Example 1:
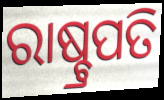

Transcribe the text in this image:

ରାଷ୍ଚ୍ରପତି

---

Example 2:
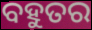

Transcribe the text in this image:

ବହୁତର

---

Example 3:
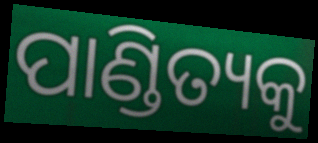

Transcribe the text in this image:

ପାଣ୍ଡିତ୍ୟକୁ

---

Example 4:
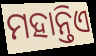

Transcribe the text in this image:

ମହାନ୍ତିଏ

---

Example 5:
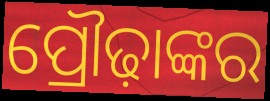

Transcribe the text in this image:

ପ୍ରୌଢ଼ାଙ୍କର